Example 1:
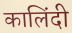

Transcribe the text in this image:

कालिंदी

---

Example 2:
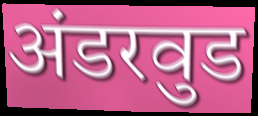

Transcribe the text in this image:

अंडरवुड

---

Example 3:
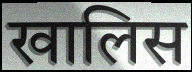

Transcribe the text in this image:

खालिस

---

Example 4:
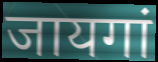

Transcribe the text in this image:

जायगां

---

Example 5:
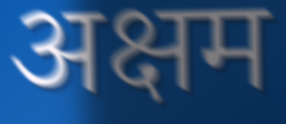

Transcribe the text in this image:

अक्षम